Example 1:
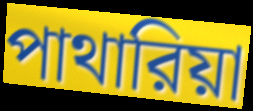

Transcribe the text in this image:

পাথারিয়া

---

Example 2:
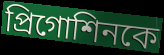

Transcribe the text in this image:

প্রিগোশিনকে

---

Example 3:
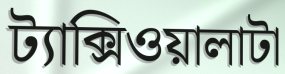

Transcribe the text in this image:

ট্যাক্সিওয়ালাটা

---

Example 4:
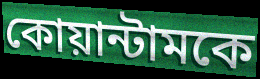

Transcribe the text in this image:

কোয়ান্টামকে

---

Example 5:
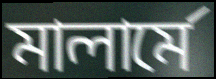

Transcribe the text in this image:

মালার্মে